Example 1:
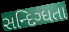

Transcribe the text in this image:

સન્દિગ્ધતા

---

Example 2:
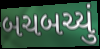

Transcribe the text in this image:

બચબચ્યું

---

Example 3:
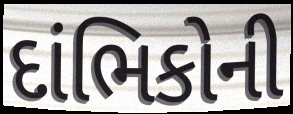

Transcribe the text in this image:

દાંભિકોની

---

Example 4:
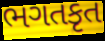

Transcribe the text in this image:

ભગતકૃત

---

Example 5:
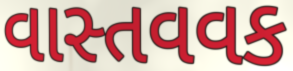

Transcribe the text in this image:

વાસ્તવવક